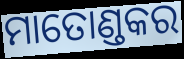
ମାତୋଣ୍ଡକର